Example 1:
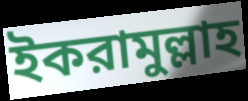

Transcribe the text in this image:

ইকরামুল্লাহ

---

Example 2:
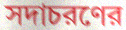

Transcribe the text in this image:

সদাচরণের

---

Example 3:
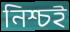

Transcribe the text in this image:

নিশ্চই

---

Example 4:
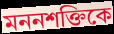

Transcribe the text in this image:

মননশক্তিকে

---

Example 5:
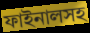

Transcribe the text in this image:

ফাইনালসহ